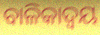
ବାଳିକାଦ୍ୱୟ